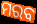
ମରବ